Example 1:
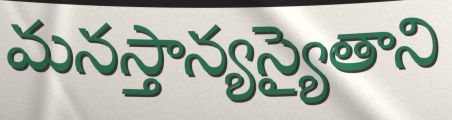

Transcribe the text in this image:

మనస్తాన్యస్యైతాని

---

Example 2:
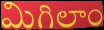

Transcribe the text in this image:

మిగిలాం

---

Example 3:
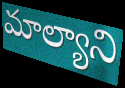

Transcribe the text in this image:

మాల్యాని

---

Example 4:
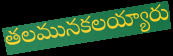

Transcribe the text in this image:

తలమునకలయ్యారు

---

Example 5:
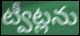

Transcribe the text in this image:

ట్వీట్లను